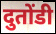
दुतोंडी